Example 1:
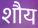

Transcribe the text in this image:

शौय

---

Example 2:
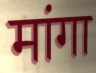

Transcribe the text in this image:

मांगा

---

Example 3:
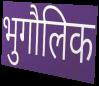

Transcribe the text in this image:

भुगौलिक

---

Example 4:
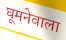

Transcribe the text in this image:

घूमनेवाला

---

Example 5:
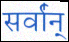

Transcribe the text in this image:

सर्वा॑न्